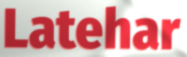
Latehar